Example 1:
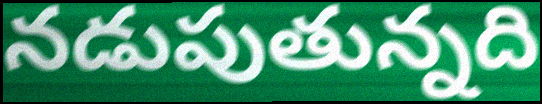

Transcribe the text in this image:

నడుపుతున్నది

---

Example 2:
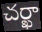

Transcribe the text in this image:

చర్ఖా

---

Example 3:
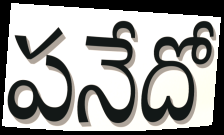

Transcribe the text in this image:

పనేదో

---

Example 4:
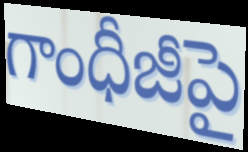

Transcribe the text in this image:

గాంధీజీపై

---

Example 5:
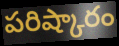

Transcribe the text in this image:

పరిష్కారం